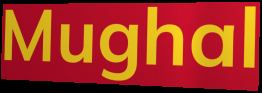
Mughal